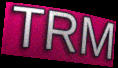
TRM